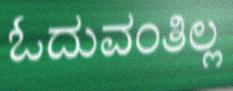
ಓದುವಂತಿಲ್ಲ